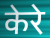
केरे